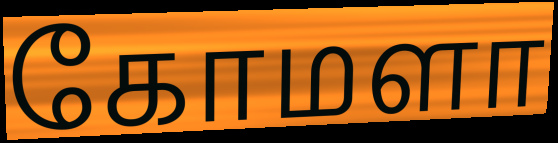
கோமளா